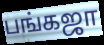
பங்கஜா